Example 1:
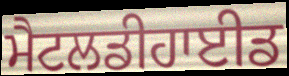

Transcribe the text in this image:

ਮੈਟਲਡੀਹਾਈਡ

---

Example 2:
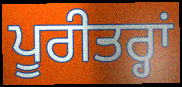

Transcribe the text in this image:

ਪੂਰੀਤਰ੍ਹਾਂ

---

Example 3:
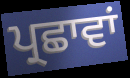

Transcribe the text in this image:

ਪ੍ਰਛਾਵਾਂ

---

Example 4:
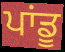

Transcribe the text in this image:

ਪਾਂਡੂ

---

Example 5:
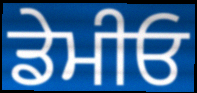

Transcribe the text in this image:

ਡੇਮੀਓ